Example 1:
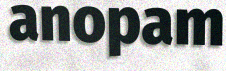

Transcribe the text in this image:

anopam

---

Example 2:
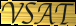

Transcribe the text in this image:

VSAT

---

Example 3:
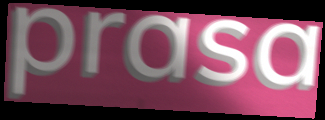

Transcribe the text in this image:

prasa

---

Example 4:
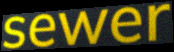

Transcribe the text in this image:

sewer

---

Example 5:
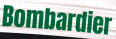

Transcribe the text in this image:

Bombardier